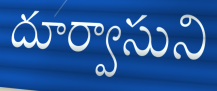
దూర్వాసుని